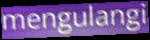
mengulangi